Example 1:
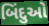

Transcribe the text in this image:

બિંદુઓ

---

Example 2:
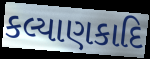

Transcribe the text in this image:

કલ્યાણકાદિ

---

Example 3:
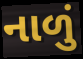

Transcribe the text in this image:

નાળું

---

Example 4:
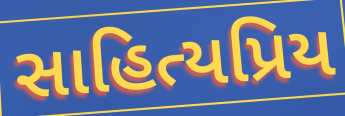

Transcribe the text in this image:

સાહિત્યપ્રિય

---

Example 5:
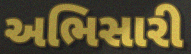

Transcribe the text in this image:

અભિસારી